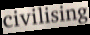
civilising